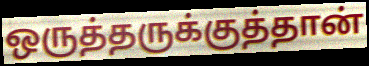
ஒருத்தருக்குத்தான்